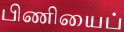
பிணியைப்